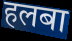
हलबा